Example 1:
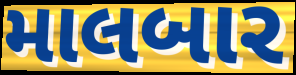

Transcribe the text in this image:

માલબાર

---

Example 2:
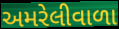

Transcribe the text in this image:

અમરેલીવાળા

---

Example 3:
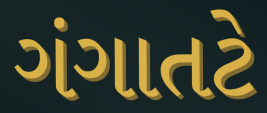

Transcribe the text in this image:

ગંગાતટે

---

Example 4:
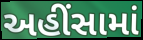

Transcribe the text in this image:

અહીંસામાં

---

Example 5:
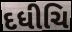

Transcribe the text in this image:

દધીચિ